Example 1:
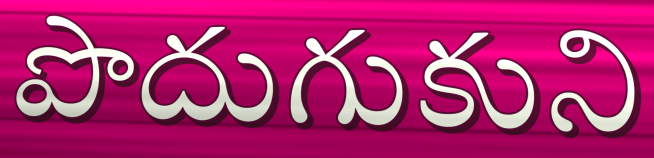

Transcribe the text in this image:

పొదుగుకుని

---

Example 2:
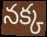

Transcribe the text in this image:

నక్క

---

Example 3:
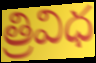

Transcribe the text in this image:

త్రివిధ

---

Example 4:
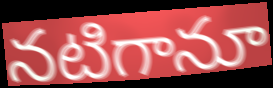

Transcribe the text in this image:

నటిగానూ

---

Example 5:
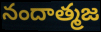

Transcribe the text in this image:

నందాత్మజ